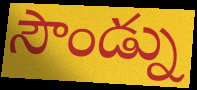
సౌండ్ను